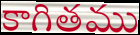
కాగితము